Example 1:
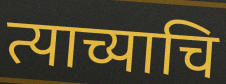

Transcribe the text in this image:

त्याच्याचि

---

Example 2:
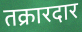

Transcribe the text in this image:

तक्रारदार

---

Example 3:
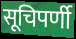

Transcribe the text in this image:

सूचिपर्णी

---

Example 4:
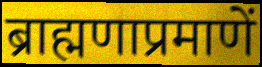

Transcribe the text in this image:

ब्राह्मणाप्रमाणें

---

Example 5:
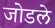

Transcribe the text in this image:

जोडले